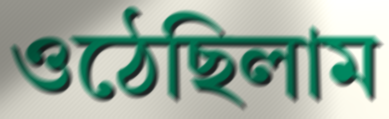
ওঠেছিলাম